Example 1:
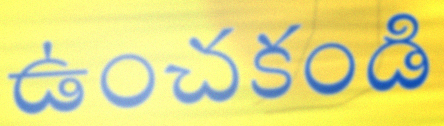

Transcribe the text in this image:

ఉంచకండి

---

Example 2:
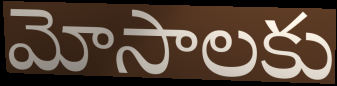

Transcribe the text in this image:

మోసాలకు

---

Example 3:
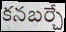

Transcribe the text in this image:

కనబర్చే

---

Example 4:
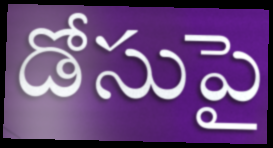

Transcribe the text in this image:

డోసుపై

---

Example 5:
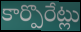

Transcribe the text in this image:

కార్పొరేట్లు